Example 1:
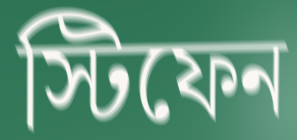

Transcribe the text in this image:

স্টিফেন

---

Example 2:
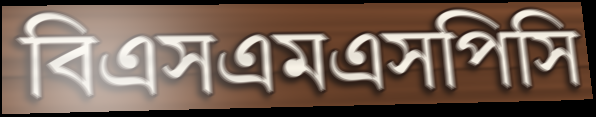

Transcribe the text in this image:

বিএসএমএসপিসি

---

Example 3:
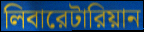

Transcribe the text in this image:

লিবারেটারিয়ান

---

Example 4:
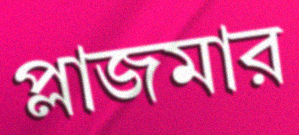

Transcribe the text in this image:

প্লাজমার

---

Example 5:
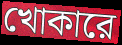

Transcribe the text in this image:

খোকারে